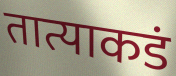
तात्याकडं